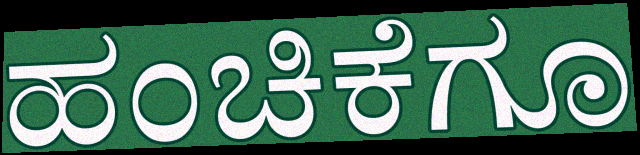
ಹಂಚಿಕೆಗೂ